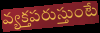
వ్యక్తపరుస్తుంటే